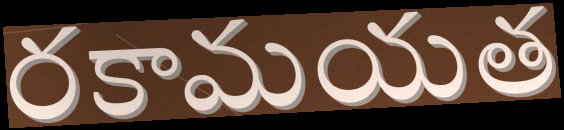
రకామయత